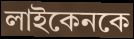
লাইকেনকে